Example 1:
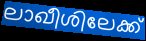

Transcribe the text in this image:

ലാഖീശിലേക്ക്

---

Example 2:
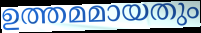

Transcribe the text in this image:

ഉത്തമമായതും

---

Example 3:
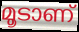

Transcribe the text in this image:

മൂടാണ്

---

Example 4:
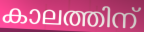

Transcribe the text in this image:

കാലത്തിന്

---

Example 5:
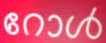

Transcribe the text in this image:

റോൾ